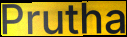
Prutha